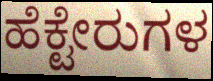
ಹೆಕ್ಟೇರುಗಳ